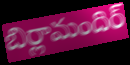
బిర్లామందిర్